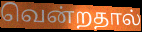
வென்றதால்